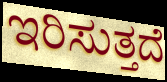
ಇರಿಸುತ್ತದೆ